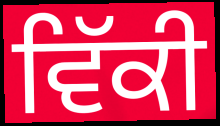
ਵਿੱਕੀ